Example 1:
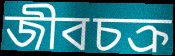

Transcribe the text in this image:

জীবচক্র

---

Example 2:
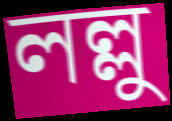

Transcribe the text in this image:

লল্লু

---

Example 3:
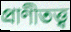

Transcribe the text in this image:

প্রাণীতত্ত্ব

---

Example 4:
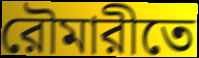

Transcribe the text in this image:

রৌমারীতে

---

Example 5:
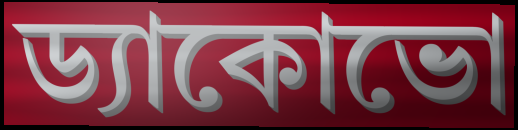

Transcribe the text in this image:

ড্যাকোভো